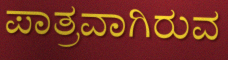
ಪಾತ್ರವಾಗಿರುವ